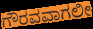
ಗೌರವವಾಗಲೀ